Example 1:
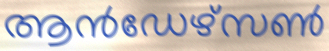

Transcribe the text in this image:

ആൻഡേഴ്സൺ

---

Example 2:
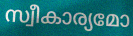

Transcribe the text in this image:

സ്വീകാര്യമോ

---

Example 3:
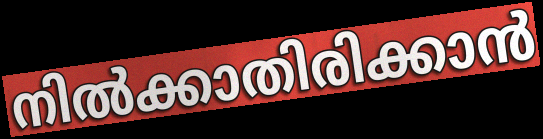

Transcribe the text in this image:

നിൽക്കാതിരിക്കാൻ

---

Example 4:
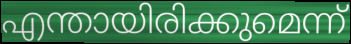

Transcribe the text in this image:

എന്തായിരിക്കുമെന്ന്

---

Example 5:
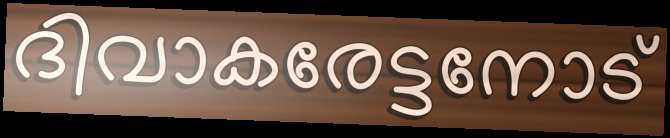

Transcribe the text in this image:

ദിവാകരേട്ടനോട്